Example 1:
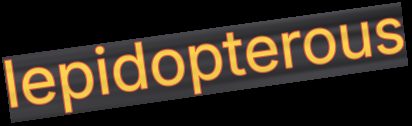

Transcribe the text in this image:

lepidopterous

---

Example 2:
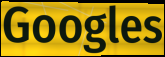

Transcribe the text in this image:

Googles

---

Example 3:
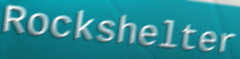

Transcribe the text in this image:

Rockshelter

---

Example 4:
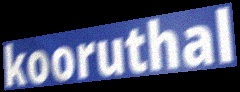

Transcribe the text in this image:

kooruthal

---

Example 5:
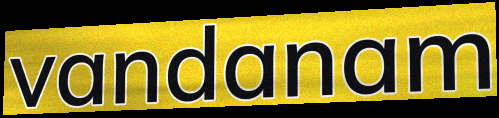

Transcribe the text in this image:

vandanam